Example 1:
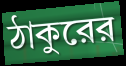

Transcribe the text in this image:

ঠাকুরের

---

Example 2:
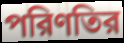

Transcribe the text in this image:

পরিণতির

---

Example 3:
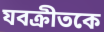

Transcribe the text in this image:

যবক্রীতকে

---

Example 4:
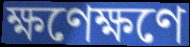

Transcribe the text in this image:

ক্ষণেক্ষণে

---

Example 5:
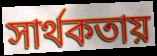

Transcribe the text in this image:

সার্থকতায়